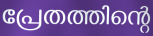
പ്രേതത്തിന്റെ